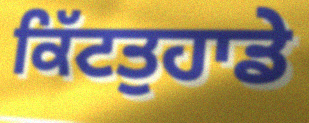
ਕਿੱਟਤੁਹਾਡੇ